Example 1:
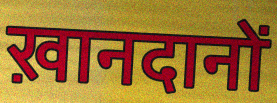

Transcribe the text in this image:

ख़ानदानों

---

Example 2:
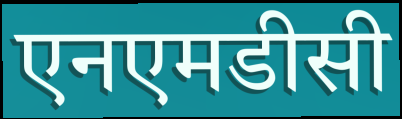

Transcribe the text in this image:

एनएमडीसी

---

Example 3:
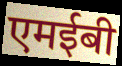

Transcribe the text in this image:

एमईबी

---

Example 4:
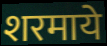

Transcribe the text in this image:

शरमाये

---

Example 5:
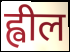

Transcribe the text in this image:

ह्वील